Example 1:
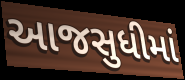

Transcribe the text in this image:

આજસુધીમાં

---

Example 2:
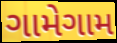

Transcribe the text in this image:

ગામેગામ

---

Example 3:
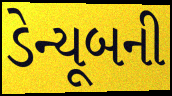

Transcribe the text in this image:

ડેન્યૂબની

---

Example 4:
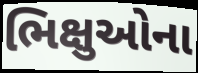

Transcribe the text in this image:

ભિક્ષુઓના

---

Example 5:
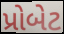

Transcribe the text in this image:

પ્રોબેટ